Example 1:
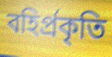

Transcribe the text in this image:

বহির্প্রকৃতি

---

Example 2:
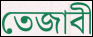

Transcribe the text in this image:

তেজাবী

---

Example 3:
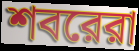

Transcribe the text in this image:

শবরেরা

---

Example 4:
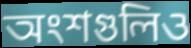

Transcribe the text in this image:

অংশগুলিও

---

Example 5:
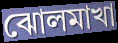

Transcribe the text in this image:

ঝোলমাখা